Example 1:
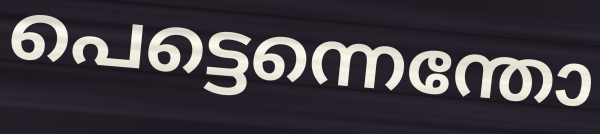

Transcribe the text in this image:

പെട്ടെന്നെന്തോ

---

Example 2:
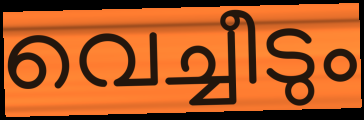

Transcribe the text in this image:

വെച്ചീടും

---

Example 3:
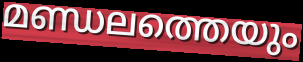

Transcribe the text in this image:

മണ്ഡലത്തെയും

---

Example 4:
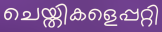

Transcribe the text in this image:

ചെയ്തികളെപ്പറ്റി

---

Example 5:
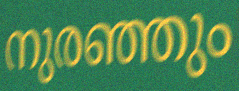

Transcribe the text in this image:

നുരഞ്ഞും